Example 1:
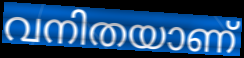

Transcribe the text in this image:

വനിതയാണ്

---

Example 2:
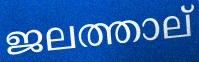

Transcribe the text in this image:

ജലത്താല്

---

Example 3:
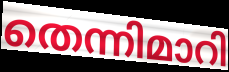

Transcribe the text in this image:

തെന്നിമാറി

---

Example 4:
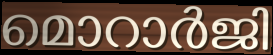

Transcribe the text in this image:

മൊറാർജി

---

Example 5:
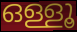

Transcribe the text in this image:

ഒള്ളൂ